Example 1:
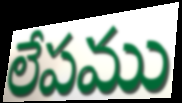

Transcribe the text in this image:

లేపము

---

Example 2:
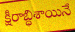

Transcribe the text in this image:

క్షీరాబ్ధిశాయినే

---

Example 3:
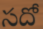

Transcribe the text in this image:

సదో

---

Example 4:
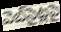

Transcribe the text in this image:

వెబ్‌సైట్లపై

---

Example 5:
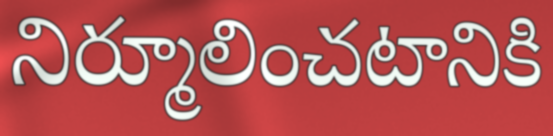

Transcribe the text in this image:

నిర్మూలించటానికి